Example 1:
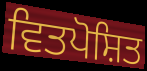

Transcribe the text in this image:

ਵਿਤਪੋਸ਼ਿਤ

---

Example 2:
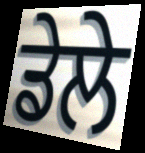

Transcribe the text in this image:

ਡੇਲੇ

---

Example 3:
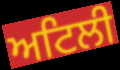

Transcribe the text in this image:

ਅਟਿਲੀ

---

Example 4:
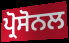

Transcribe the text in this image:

ਪ੍ਰੋਸੋਨਲ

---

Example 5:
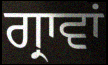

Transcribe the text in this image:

ਗ੍ਰਾਵਾਂ